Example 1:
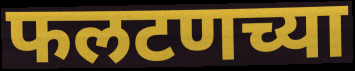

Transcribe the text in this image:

फलटणच्या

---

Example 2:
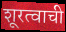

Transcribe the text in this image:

शूरत्वाची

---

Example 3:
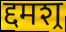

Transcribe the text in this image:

द्दमश्र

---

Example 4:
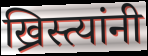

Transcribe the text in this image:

ख्रिस्त्यांनी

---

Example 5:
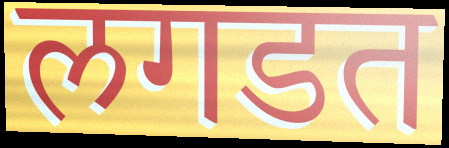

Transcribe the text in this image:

लगडत